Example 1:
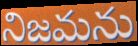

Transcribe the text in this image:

నిజమను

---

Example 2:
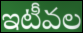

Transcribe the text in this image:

ఇటీవల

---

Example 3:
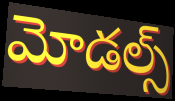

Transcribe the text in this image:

మోడల్స్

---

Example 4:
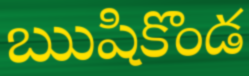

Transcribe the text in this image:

ఋషికొండ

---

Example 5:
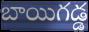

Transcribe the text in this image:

బాయిగడ్డ